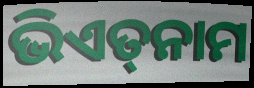
ଭିଏତ୍‌ନାମ